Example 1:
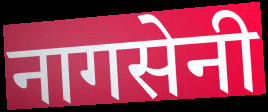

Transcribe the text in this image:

नागसेनी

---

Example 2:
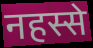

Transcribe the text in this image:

नहस्से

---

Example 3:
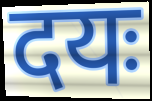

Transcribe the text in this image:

दयः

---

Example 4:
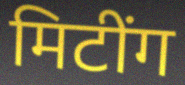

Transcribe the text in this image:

मिटींग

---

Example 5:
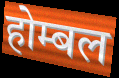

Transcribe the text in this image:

होम्बल